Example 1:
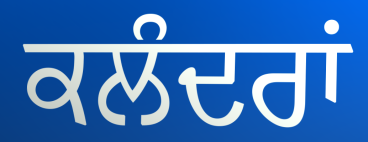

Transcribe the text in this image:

ਕਲੰਦਰਾਂ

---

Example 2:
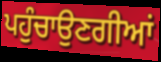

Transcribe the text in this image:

ਪਹੁੰਚਾਉਣਗੀਆਂ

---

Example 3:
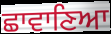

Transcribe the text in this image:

ਛਾਵਾਣਿਆ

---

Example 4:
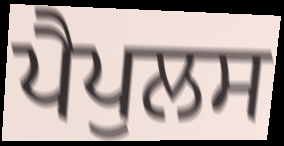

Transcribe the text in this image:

ਪੈਪੁਲਸ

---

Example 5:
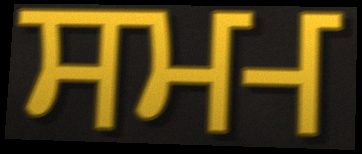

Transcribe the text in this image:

ਸਮ੍ਮ